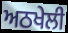
ਅਠਖੇਲੀ